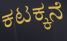
ಕಟಕ್ಕನೆ